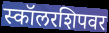
स्कॉलरशिपवर